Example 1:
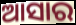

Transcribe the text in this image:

ଆସାର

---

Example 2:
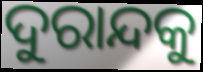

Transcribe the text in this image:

ଦୁରାନ୍ଦକୁ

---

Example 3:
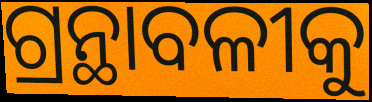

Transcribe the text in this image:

ଗ୍ରନ୍ଥାବଳୀକୁ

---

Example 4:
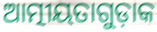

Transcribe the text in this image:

ଆତ୍ମୀୟତାଗୁଡ଼ାକ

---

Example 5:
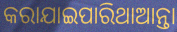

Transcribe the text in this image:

କରାଯାଇପାରିଥାଆନ୍ତା